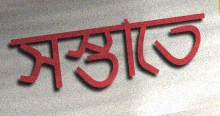
সস্তাতে